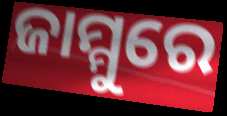
ଜାମ୍ମୁରେ